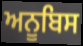
ਅਨੂਬਿਸ